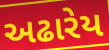
અઢારેય